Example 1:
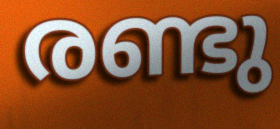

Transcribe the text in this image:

രണ്ടു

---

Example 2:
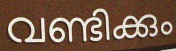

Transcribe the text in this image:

വണ്ടിക്കും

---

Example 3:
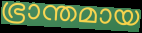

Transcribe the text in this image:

ഭ്രാന്തമായ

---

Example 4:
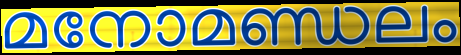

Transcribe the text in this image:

മനോമണ്ഡലം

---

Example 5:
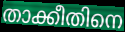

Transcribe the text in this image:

താക്കീതിനെ